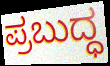
ಪ್ರಬುದ್ಧ